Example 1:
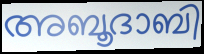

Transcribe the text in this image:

അബൂദാബി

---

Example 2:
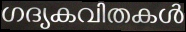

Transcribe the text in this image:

ഗദ്യകവിതകൾ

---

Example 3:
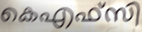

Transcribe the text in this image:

കെഎഫ്സി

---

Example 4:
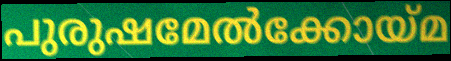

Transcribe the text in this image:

പുരുഷമേൽക്കോയ്മ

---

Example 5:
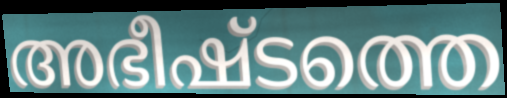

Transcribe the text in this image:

അഭീഷ്ടത്തെ